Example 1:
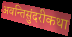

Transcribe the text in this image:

अवन्तिसुंदरीकथा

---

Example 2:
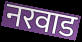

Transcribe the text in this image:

नरवाड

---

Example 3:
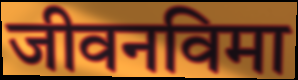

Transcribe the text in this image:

जीवनविमा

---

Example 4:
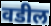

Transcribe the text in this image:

वडील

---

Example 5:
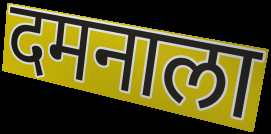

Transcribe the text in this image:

दमनाला